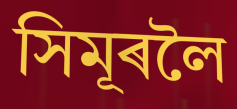
সিমূৰলৈ